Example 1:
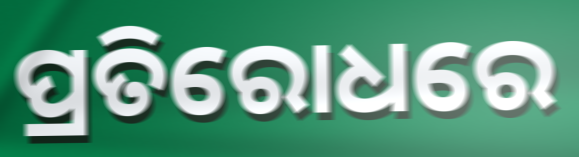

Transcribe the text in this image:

ପ୍ରତିରୋଧରେ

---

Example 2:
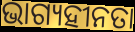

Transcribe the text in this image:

ଭାଗ୍ୟହୀନତା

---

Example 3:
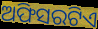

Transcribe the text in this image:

ଅଫିସରଟିଏ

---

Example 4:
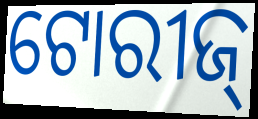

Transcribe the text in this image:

ଟୋରୀଜ୍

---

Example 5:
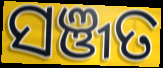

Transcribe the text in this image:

ସଞ୍ଜତ